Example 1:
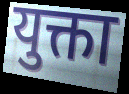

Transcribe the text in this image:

युक्ता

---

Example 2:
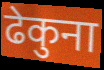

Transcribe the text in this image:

ढेकुना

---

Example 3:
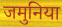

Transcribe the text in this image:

जमुनिया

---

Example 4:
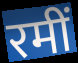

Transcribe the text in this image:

रमीं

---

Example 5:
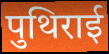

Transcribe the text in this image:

पुथिराई